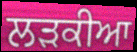
ਲੜਕੀਆ